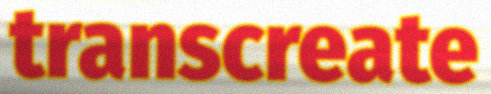
transcreate